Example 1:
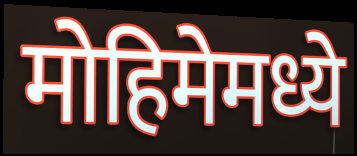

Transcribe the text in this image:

मोहिमेमध्ये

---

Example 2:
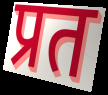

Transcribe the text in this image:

प्रत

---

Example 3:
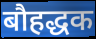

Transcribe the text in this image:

बौहद्धक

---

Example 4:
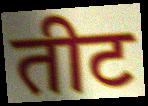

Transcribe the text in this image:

तीट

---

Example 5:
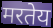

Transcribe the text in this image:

मरतेय